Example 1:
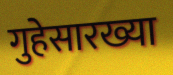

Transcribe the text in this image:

गुहेसारख्या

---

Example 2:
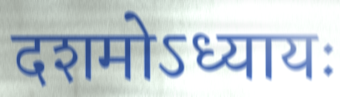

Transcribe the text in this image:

दशमोऽध्यायः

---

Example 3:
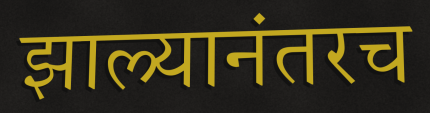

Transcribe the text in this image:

झाल्यानंतरच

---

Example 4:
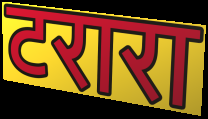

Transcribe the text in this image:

टरारा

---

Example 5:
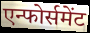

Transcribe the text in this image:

एन्फोर्समेंट